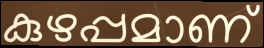
കുഴപ്പമാണ്